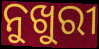
ନୁଖୁରୀ